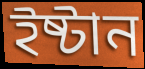
ইষ্টান